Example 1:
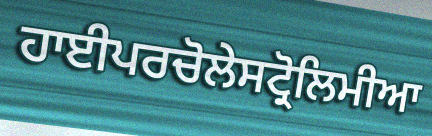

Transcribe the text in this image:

ਹਾਈਪਰਚੋਲੇਸਟ੍ਰੋਲਿਮੀਆ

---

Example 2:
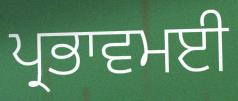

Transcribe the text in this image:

ਪ੍ਰਭਾਵਮਈ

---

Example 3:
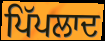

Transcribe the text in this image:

ਪਿੱਪਲਾਦ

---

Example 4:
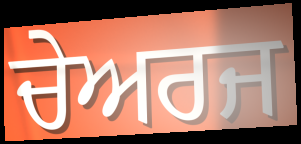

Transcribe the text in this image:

ਚੇਅਰਜ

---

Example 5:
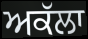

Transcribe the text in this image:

ਅਕੱਲਾ